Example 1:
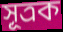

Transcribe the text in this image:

সূত্ৰক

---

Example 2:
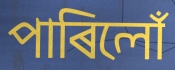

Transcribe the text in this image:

পাৰিলোঁ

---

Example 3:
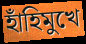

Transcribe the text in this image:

হাঁহিমুখে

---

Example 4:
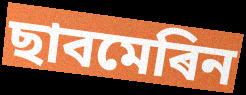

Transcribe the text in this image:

ছাবমেৰিন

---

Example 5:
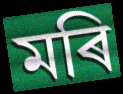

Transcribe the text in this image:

মৰি